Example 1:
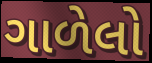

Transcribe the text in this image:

ગાળેલો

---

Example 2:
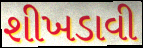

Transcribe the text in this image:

શીખડાવી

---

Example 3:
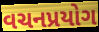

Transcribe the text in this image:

વચનપ્રયોગ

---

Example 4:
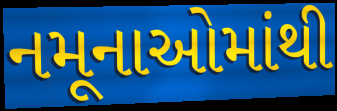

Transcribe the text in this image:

નમૂનાઓમાંથી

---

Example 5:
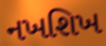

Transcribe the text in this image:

નખશિખ